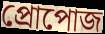
প্রোপোজ